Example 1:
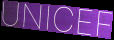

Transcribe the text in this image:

UNICEF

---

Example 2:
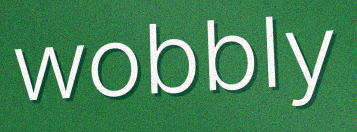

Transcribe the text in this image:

wobbly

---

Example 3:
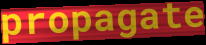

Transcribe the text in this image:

propagate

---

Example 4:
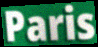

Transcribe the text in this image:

Paris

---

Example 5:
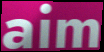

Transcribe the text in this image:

aim